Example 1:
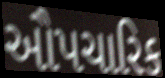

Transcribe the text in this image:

ઔપચારિક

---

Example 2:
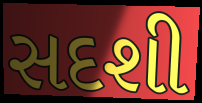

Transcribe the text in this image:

સદશી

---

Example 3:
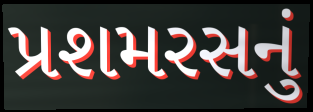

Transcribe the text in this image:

પ્રશમરસનું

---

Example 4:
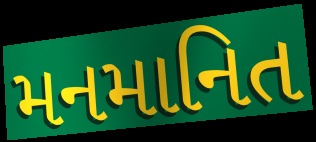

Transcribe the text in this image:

મનમાનિત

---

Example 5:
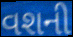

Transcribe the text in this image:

વશની